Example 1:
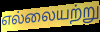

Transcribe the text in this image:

எல்லையற்று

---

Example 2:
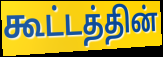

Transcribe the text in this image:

கூட்டத்தின்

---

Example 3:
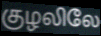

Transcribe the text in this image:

குழலிலே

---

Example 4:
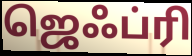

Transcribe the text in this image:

ஜெஃப்ரி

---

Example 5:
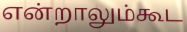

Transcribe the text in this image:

என்றாலும்கூட